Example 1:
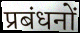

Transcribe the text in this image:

प्रबंधनों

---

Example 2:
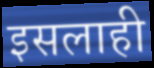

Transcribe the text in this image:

इसलाही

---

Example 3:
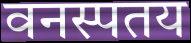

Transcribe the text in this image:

वनस्पतय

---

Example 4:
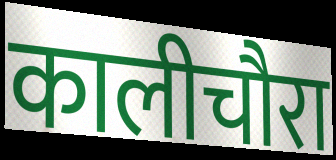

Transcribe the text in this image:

कालीचौरा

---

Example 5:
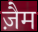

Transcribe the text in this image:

ज़ैम